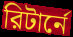
রিটার্নে